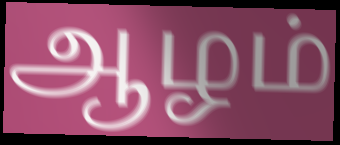
ஆழம்